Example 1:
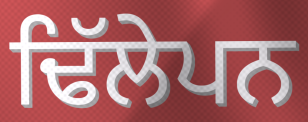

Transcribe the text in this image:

ਢਿੱਲੇਪਨ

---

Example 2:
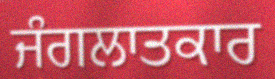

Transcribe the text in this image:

ਜੰਗਲਾਤਕਾਰ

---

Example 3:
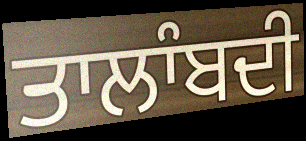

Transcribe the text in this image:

ਤਾਲਾੰਬਦੀ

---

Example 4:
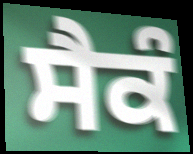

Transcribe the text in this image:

ਸੈਕੰ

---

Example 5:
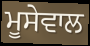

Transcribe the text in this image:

ਮੂਸੇਵਾਲ